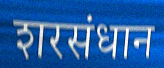
शरसंधान